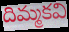
దిమ్మకవి